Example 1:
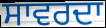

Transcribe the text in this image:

ਸਾਵਰਦਾ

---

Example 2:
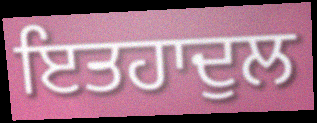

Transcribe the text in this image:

ਇਤਹਾਦੁਲ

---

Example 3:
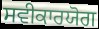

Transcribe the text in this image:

ਸਵੀਕਾਰਯੋਗ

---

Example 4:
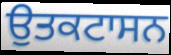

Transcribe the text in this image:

ਉਤਕਟਾਸਨ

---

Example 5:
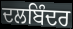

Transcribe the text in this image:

ਦਲਬਿੰਦਰ